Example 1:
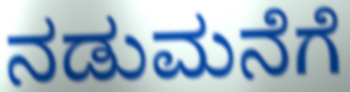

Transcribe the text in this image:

ನಡುಮನೆಗೆ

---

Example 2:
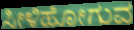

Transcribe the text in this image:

ಸೀಳಿಹೋಗುವ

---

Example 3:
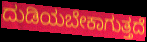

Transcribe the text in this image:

ದುಡಿಯಬೇಕಾಗುತ್ತದೆ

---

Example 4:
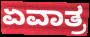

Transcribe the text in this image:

ಏವಾತ್ರ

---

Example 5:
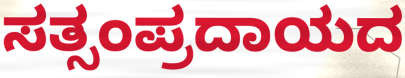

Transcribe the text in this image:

ಸತ್ಸಂಪ್ರದಾಯದ